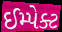
ઈમ્પેક્ટ